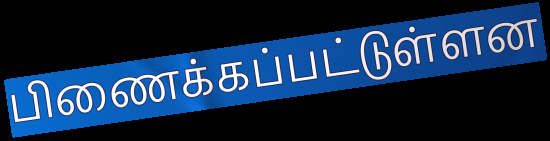
பிணைக்கப்பட்டுள்ளன